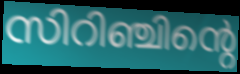
സിറിഞ്ചിന്റെ